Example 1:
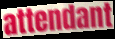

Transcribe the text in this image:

attendant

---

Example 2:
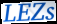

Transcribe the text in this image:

LEZs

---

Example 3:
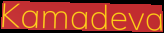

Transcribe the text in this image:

Kamadeva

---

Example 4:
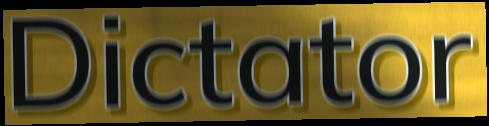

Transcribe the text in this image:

Dictator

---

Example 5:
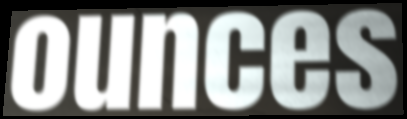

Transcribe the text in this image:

ounces